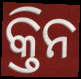
କ୍ତିନ